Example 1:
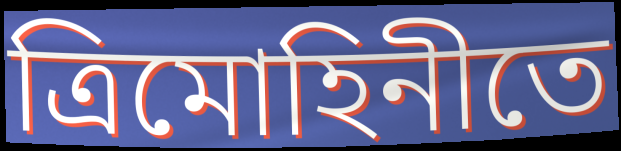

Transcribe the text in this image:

ত্রিমোহিনীতে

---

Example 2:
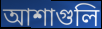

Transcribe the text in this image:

আশাগুলি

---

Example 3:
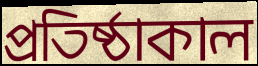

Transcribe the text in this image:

প্রতিষ্ঠাকাল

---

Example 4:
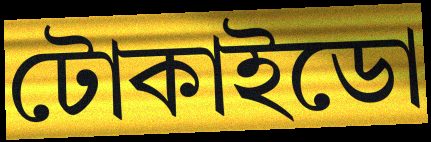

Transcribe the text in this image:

টোকাইডো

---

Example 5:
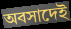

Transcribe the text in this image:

অবসাদেই